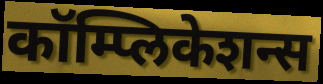
कॉम्प्लिकेशन्स